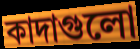
কাদাগুলো